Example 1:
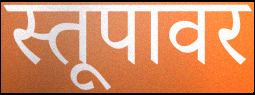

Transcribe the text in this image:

स्तूपावर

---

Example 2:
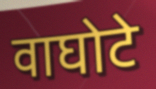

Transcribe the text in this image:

वाघोटे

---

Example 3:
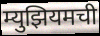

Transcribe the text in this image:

म्युझियमची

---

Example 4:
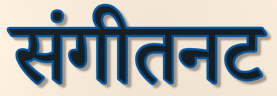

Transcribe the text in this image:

संगीतनट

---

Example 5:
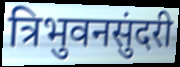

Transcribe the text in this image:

त्रिभुवनसुंदरी